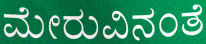
ಮೇರುವಿನಂತೆ